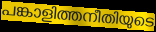
പങ്കാളിത്തനീതിയുടെ